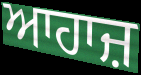
ਆਹਾਜ਼